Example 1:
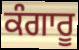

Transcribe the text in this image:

ਕੰਗਾਰੂ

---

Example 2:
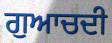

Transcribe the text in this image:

ਗੁਆਚਦੀ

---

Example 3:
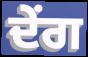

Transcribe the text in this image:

ਦੇਂਗ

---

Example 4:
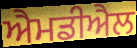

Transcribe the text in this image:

ਐਮਡੀਐਲ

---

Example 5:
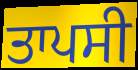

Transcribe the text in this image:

ਤਾਪਸੀ